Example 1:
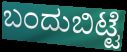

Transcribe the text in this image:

ಬಂದುಬಿಟ್ಟೆ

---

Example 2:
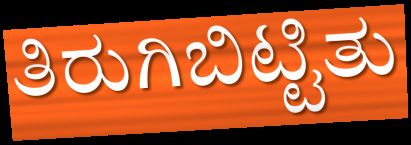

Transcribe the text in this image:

ತಿರುಗಿಬಿಟ್ಟಿತು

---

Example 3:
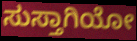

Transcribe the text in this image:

ಸುಸ್ತಾಗಿಯೋ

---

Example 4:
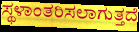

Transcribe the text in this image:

ಸ್ಥಳಾಂತರಿಸಲಾಗುತ್ತದೆ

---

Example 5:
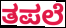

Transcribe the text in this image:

ತಪಲೆ